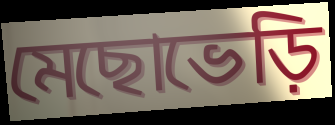
মেছোভেড়ি